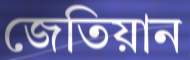
জেতিয়ান